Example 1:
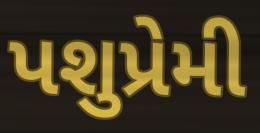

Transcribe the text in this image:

પશુપ્રેમી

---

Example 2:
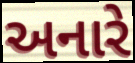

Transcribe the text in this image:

અનારે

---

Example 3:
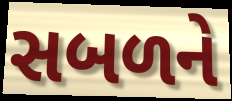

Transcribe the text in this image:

સબળને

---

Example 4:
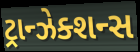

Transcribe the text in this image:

ટ્રાન્ઝેક્શન્સ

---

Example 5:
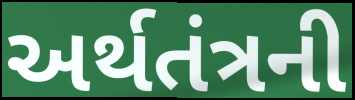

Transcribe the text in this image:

અર્થતંત્રની